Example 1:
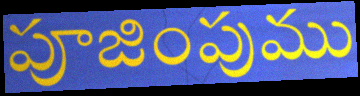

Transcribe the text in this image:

పూజింపుము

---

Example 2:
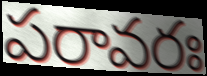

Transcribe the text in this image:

పరావరః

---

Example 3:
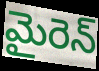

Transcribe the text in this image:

మైరెన్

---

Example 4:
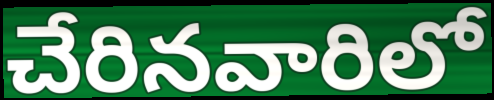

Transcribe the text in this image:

చేరినవారిలో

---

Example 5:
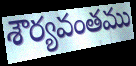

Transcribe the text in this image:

శౌర్యవంతము